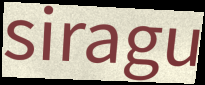
siragu